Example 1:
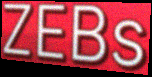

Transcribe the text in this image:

ZEBs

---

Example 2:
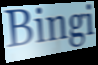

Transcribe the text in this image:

Bingi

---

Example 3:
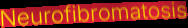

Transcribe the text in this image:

Neurofibromatosis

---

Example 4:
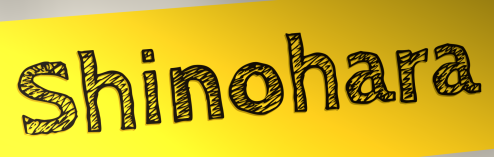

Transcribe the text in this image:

Shinohara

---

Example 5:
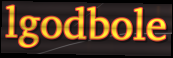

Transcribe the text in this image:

lgodbole